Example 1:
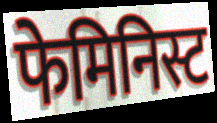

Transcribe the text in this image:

फेमिनिस्ट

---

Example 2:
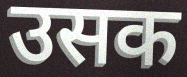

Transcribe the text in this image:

उसक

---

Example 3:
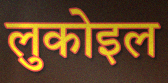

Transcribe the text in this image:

लुकोइल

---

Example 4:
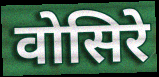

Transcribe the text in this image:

वोसिरे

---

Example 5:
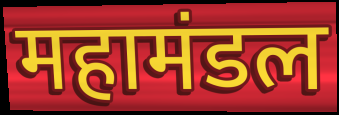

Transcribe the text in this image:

महामंडल